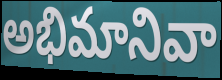
అభిమానివా